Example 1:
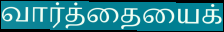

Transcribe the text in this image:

வார்த்தையைக்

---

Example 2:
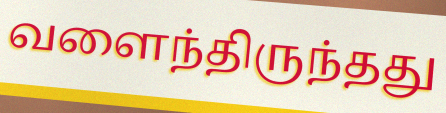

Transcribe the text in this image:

வளைந்திருந்தது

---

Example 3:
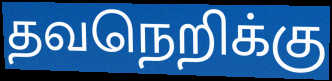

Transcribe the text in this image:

தவநெறிக்கு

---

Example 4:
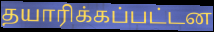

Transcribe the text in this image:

தயாரிக்கப்பட்டன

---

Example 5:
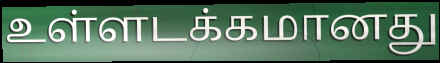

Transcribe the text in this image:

உள்ளடக்கமானது